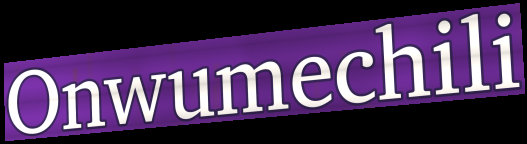
Onwumechili